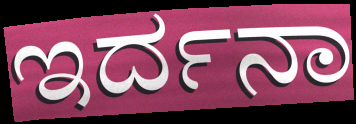
ಇರ್ದನಾ